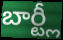
బార్ట్లీ